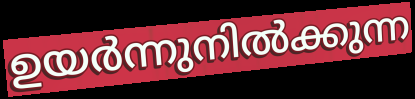
ഉയർന്നുനിൽക്കുന്ന